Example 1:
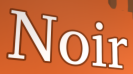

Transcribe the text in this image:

Noir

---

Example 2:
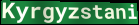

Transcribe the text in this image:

Kyrgyzstani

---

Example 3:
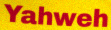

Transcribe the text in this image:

Yahweh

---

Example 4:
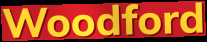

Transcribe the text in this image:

Woodford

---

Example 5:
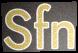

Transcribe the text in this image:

Sfn